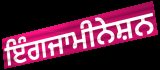
ਇੰਗਜਾਮੀਨੇਸ਼ਨ